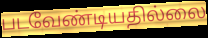
படவேண்டியதில்லை